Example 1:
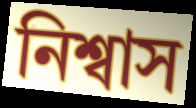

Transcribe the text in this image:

নিশ্বাস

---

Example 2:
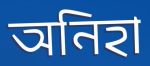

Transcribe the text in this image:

অনিহা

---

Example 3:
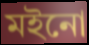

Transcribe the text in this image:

মইনো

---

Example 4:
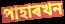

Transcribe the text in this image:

পাহাৰখন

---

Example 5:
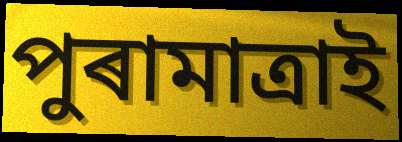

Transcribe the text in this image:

পুৰামাত্ৰাই